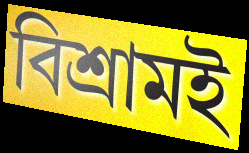
বিশ্রামই